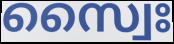
സ്വൈഃ